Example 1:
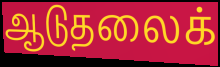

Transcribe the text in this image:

ஆடுதலைக்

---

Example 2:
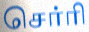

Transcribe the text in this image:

செர்ரி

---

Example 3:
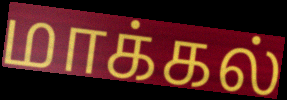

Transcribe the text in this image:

மாக்கல்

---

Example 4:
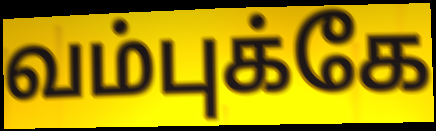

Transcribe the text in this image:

வம்புக்கே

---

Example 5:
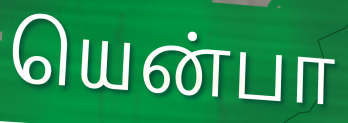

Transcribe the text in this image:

யென்பா